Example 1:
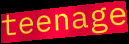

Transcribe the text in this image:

teenage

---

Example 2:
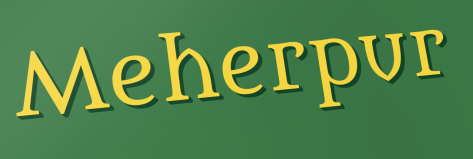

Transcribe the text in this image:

Meherpur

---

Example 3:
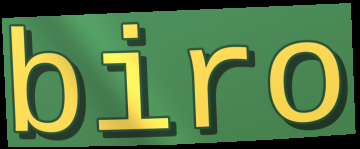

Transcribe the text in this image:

biro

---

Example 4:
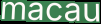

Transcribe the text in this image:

macau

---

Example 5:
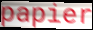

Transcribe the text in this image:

papier